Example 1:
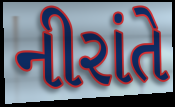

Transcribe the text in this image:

નીરાંતે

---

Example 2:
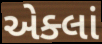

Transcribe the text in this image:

એક્લાં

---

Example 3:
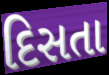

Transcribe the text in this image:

દિસતા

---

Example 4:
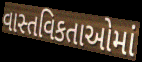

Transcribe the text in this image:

વાસ્તવિકતાઓમાં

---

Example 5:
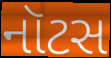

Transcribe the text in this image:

નૉટસ